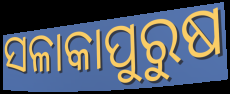
ସଳାକାପୁରୁଷ